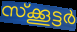
സ്ക്കൂട്ടർ